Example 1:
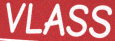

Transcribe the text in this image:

VLASS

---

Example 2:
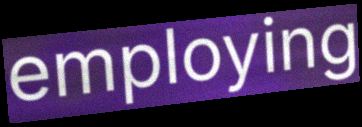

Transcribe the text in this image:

employing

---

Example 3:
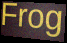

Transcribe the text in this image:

Frog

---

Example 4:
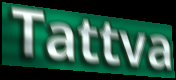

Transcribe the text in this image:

Tattva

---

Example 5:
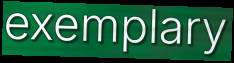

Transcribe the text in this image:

exemplary